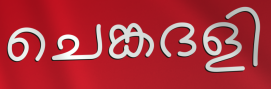
ചെങ്കദളി